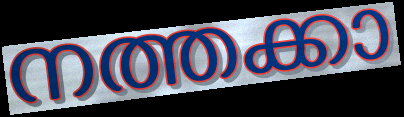
നത്തക്കാ